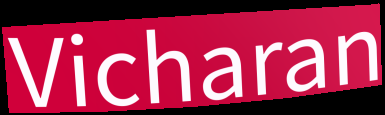
Vicharan